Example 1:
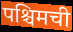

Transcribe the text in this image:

पश्चिमची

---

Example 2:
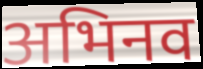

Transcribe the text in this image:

अभिनव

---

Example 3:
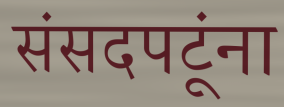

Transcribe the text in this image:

संसदपटूंना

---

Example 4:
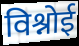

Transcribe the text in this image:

विश्नोई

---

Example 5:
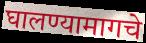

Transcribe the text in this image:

घालण्यामागचे